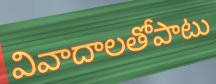
వివాదాలతోపాటు